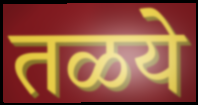
तळये